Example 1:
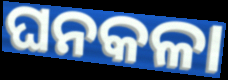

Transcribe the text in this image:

ଘନକଳା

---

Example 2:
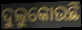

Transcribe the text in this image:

ଦୁଲୁକୋଉଛି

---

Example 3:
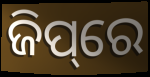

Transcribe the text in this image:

ଜିପ୍‌ରେ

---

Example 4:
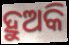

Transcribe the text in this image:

ହୁଅକି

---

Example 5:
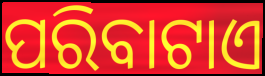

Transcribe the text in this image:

ପରିବାଟାଏ